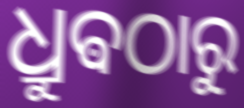
ଧ୍ରୁଵଠାରୁ